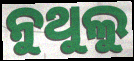
ନୁଥୁଲୁ